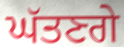
ਘੱਤਣਗੇ